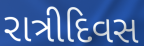
રાત્રીદિવસ